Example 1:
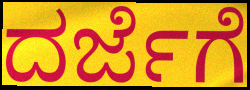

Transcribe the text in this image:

ದರ್ಜೆಗೆ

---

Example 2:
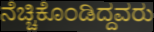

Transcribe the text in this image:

ನೆಚ್ಚಿಕೊಂಡಿದ್ದವರು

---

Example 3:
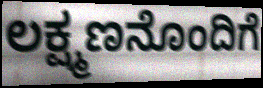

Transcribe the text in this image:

ಲಕ್ಷ್ಮಣನೊಂದಿಗೆ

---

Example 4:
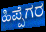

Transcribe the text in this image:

ಹಿಪ್ಪೆಗರ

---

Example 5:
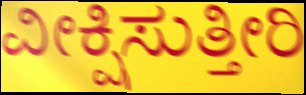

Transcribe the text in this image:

ವೀಕ್ಷಿಸುತ್ತೀರಿ